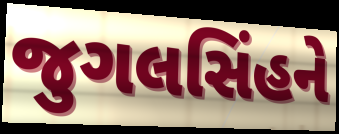
જુગલસિંહને